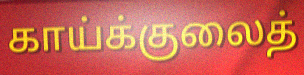
காய்க்குலைத்